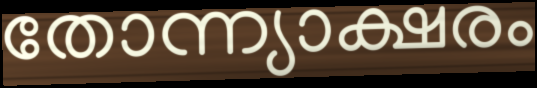
തോന്ന്യാക്ഷരം